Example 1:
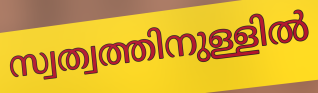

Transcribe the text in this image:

സ്വത്വത്തിനുള്ളിൽ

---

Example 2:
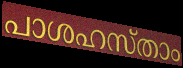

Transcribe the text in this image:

പാശഹസ്താം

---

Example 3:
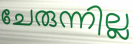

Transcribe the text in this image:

ചേരുന്നില്ല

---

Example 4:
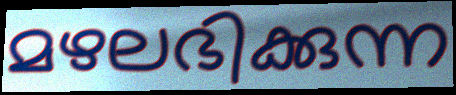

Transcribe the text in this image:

മഴലഭിക്കുന്ന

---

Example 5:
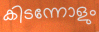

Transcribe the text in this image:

കിടന്നോളും